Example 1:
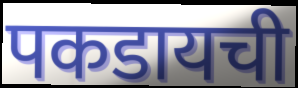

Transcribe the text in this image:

पकडायची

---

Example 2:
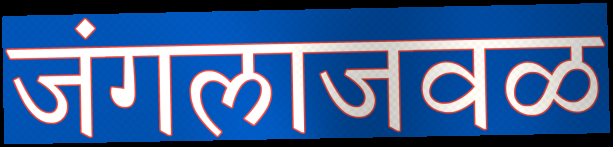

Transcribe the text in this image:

जंगलाजवळ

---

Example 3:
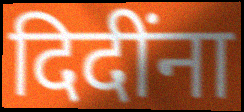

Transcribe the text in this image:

दिदींना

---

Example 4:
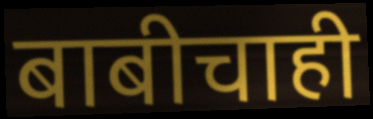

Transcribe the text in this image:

बाबीचाही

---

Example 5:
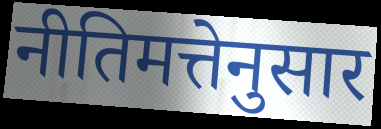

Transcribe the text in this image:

नीतिमत्तेनुसार